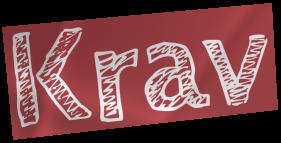
Krav